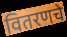
वितरणचे